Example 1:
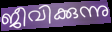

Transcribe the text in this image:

ജീവിക്കുന്നു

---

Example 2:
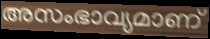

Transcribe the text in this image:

അസംഭാവ്യമാണ്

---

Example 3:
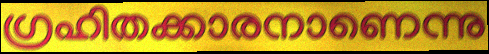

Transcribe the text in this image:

ഗ്രഹിതക്കാരനാണെന്നു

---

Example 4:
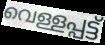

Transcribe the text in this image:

വെള്ളപ്പട്ട്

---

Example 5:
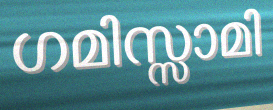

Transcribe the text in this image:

ഗമിസ്സാമി